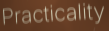
Practicality